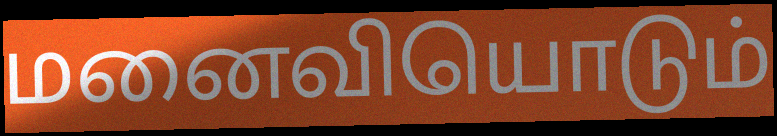
மனைவியொடும்